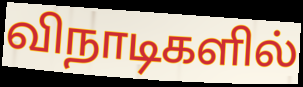
விநாடிகளில்